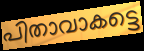
പിതാവാകട്ടെ